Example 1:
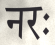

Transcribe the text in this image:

नरः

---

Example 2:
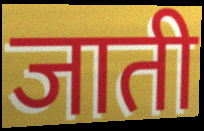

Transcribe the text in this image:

जाती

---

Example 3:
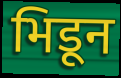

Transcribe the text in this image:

भिडून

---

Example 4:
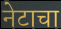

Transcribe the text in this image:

नेटाचा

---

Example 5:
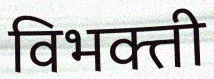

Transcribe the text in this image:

विभक्ती